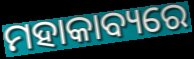
ମହାକାବ୍ୟରେ